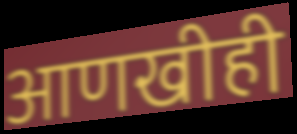
आणखीही